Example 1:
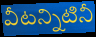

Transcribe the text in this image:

వీటన్నిటినీ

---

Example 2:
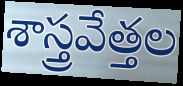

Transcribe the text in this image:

శాస్త్రవేత్తల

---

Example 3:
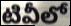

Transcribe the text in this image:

టివీలో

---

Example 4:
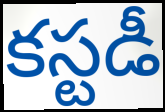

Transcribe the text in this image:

కస్టడీ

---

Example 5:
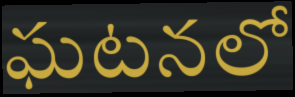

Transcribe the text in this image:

ఘటనలో